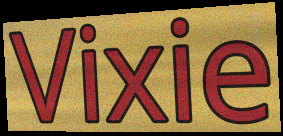
Vixie